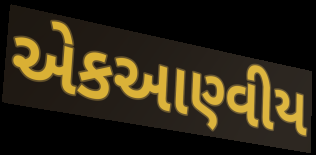
એકઆણ્વીય